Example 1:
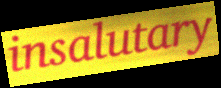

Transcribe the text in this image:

insalutary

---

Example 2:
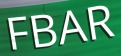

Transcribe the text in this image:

FBAR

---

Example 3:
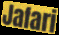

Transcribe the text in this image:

Jafari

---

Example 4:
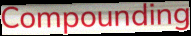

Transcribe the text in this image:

Compounding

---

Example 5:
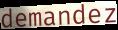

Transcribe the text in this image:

demandez